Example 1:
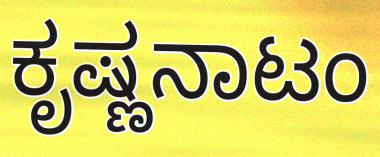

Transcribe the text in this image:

ಕೃಷ್ಣನಾಟಂ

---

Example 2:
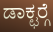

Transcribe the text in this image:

ಡಾಕ್ಟರ್‍ಗೆ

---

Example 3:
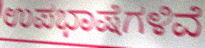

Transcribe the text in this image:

ಉಪಭಾಷೆಗಳಿವೆ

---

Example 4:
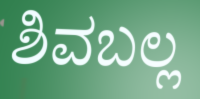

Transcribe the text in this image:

ಶಿವಬಲ್ಲ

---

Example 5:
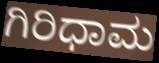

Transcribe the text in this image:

ಗಿರಿಧಾಮ